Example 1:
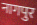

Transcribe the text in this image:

नागपुर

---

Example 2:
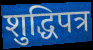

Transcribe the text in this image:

शुद्धिपत्र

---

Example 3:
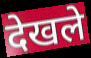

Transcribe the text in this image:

देखले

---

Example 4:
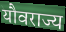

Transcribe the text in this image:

यौवराज्य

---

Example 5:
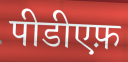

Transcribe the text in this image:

पीडीएफ़